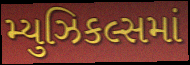
મ્યુઝિકલ્સમાં